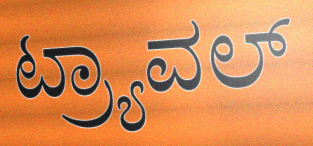
ಟ್ರ್ಯಾವಲ್